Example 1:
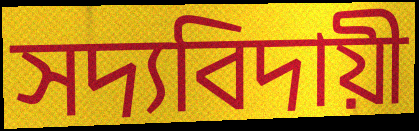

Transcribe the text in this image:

সদ্যবিদায়ী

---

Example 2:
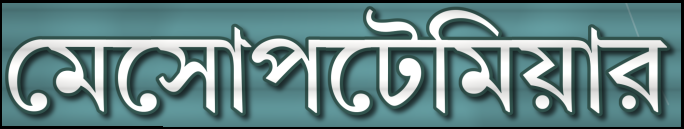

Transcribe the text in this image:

মেসোপটেমিয়ার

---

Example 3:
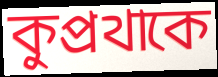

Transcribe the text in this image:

কুপ্রথাকে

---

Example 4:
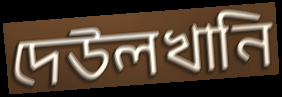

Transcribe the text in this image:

দেউলখানি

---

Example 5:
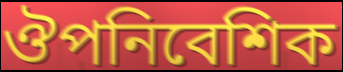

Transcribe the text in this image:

ঔপনিবেশিক